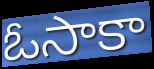
ఓసాకా